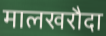
मालखरौदा